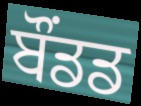
ਬੌਂਡਡ